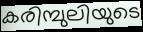
കരിമ്പുലിയുടെ